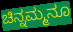
ಚಿನ್ನಮ್ಮನೂ